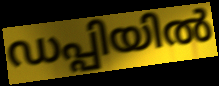
ഡപ്പിയിൽ